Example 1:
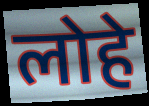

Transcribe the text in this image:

लोहे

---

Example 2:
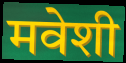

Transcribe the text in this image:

मवेशी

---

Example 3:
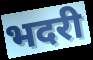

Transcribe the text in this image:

भदरी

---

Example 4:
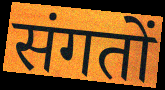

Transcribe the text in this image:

संगतों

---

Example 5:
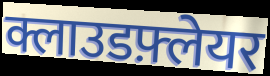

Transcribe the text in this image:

क्लाउडफ़्लेयर